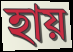
হায়